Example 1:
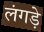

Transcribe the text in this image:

लंगड़े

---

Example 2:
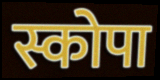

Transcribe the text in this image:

स्कोपा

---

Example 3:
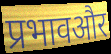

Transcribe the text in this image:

प्रभावऔर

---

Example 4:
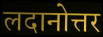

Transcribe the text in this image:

लदानोत्तर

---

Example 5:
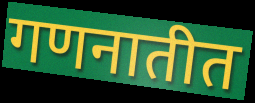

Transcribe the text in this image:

गणनातीत